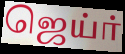
ஜெய்ர்